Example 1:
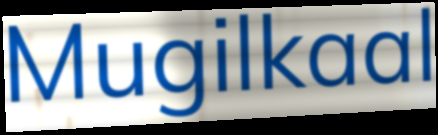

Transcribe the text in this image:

Mugilkaal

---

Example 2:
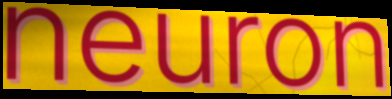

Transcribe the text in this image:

neuron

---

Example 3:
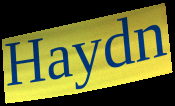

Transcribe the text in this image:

Haydn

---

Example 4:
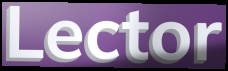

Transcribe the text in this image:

Lector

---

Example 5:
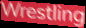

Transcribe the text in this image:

Wrestling